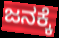
ಜನಕ್ಕೆ